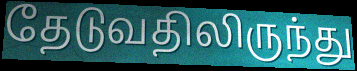
தேடுவதிலிருந்து